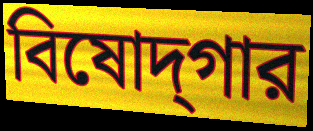
বিষোদ্‌গার